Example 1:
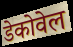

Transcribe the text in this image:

डेकोवेल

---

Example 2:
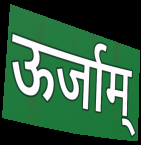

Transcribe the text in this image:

ऊर्जाम्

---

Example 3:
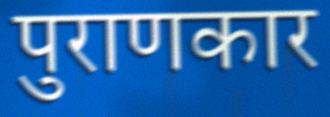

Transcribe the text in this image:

पुराणकार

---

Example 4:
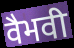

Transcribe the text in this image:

वैभवी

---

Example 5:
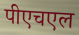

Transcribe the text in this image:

पीएचएल